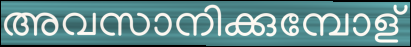
അവസാനിക്കുമ്പോള്